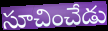
సూచించేడు